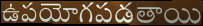
ఉపయోగపడతాయి